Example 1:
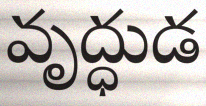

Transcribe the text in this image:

వృద్ధుడ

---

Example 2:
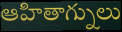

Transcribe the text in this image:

ఆహితాగ్నులు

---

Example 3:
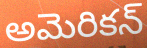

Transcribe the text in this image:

అమెరికన్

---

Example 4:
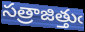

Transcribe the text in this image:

సత్రాజిత్తుఁ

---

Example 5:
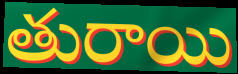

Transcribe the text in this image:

తురాయి